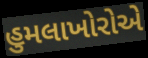
હુમલાખોરોએ